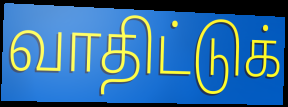
வாதிட்டுக்